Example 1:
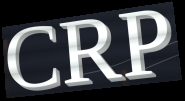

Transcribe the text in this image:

CRP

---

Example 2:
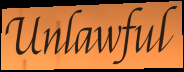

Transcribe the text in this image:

Unlawful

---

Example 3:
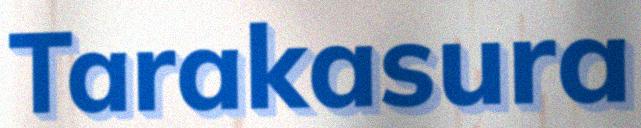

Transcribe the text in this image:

Tarakasura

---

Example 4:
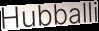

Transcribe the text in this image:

Hubballi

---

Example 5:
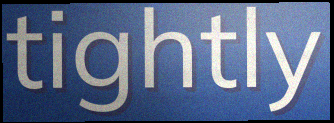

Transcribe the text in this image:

tightly